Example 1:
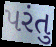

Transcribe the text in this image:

પરંતુ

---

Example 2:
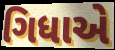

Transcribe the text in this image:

ગિધાએ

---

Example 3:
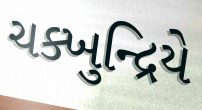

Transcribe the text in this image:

ચક્ખુન્દ્રિયે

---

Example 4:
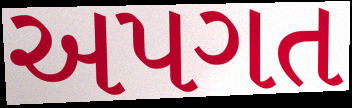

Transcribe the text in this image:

અપગત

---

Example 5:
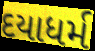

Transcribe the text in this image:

દયાધર્મ